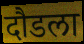
दौडला